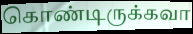
கொண்டிருக்கவா